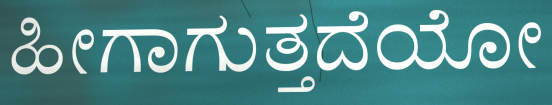
ಹೀಗಾಗುತ್ತದೆಯೋ